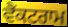
ਵੈਂਕਟਰਾਮ